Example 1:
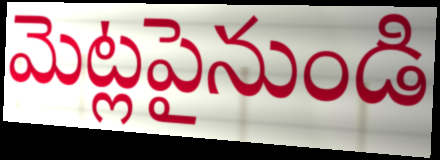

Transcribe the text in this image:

మెట్లపైనుండి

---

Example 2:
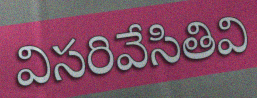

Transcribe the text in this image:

విసరివేసితివి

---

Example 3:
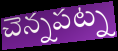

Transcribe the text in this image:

చెన్నపట్న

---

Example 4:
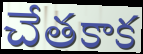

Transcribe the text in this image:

చేతకాక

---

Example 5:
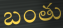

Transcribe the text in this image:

బంతు